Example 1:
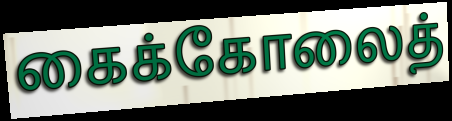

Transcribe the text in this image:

கைக்கோலைத்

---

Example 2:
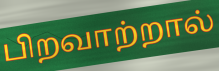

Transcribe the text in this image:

பிறவாற்றால்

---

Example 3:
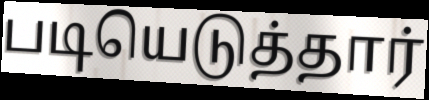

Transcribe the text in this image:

படியெடுத்தார்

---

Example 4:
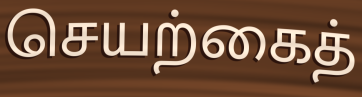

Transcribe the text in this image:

செயற்கைத்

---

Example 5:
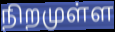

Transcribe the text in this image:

நிறமுள்ள